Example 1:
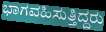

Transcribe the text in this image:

ಭಾಗವಹಿಸುತ್ತಿದ್ದರು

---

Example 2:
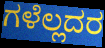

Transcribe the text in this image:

ಗಳೆಲ್ಲದರ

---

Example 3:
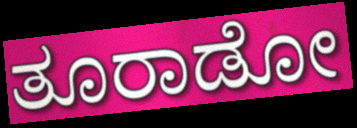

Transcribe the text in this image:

ತೂರಾಡೋ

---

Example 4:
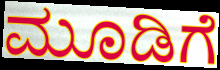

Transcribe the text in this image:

ಮೂಡಿಗೆ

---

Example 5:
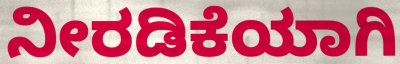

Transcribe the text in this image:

ನೀರಡಿಕೆಯಾಗಿ